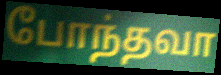
போந்தவா